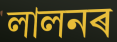
লালনৰ